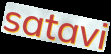
satavi